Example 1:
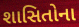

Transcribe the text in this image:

શાસિતોના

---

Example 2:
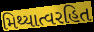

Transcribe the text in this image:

મિથ્યાત્વરહિત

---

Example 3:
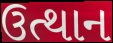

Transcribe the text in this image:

ઉત્થાન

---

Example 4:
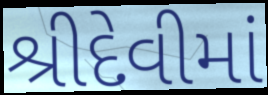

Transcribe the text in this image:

શ્રીદેવીમાં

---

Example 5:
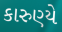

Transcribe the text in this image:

કારુણ્યે